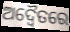
ଅଦ୍ୱୈତରେ